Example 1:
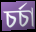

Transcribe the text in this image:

চৰ্চা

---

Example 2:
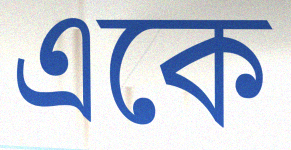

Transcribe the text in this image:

একে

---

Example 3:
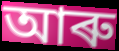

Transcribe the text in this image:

আৰু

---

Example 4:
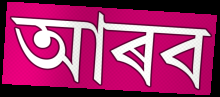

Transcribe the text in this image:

আৰব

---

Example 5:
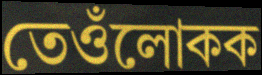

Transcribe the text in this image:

তেওঁলোকক